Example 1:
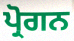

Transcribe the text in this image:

ਪ੍ਰੋਗਨ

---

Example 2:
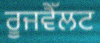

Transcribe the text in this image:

ਰੂਜਵੈੱਲਟ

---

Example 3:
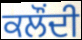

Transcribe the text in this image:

ਕਲੌਂਦੀ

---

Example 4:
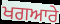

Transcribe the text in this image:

ਖਗਆਰੇ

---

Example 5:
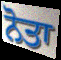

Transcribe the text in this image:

ਨੋਤਾ